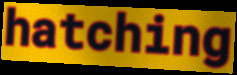
hatching